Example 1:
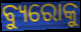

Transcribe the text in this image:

ବ୍ୟୁରୋକୁ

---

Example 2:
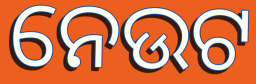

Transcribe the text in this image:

ନେଉଟ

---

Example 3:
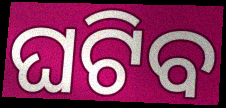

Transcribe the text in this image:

ଘଟିବ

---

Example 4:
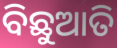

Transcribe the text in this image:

ବିଛୁଆତି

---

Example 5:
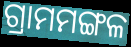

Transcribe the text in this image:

ଗ୍ରାମମଙ୍ଗଳ